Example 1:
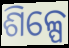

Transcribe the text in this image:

ଶିଳ୍ପେ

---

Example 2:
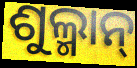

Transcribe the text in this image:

ଶୁଲ୍ମାନ୍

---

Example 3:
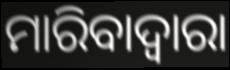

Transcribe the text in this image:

ମାରିବାଦ୍ୱାରା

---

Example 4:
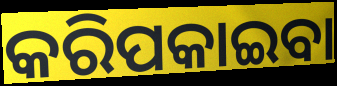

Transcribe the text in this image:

କରିପକାଇବା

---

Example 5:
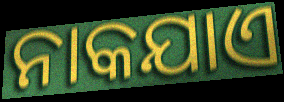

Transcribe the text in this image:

ନାକଯାଏ